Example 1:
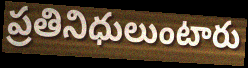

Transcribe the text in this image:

ప్రతినిధులుంటారు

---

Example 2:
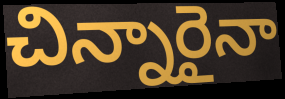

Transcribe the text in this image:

చిన్నారైనా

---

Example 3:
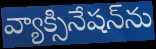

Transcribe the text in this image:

వ్యాక్సినేషన్‌ను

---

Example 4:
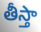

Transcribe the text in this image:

తీస్తా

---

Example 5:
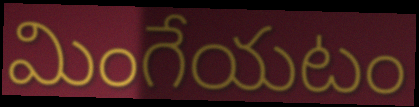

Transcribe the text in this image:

మింగేయటం